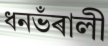
ধনভঁৰালী